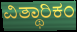
ವಿತ್ಥಾರಿಕಂ